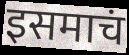
इसमाचं